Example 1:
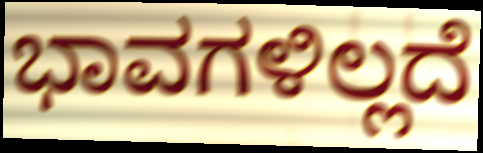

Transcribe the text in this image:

ಭಾವಗಳಿಲ್ಲದೆ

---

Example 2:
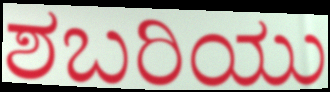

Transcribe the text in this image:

ಶಬರಿಯು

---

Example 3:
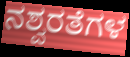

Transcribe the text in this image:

ನಶ್ವರತೆಗಳ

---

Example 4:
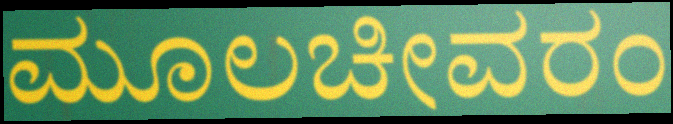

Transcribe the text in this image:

ಮೂಲಚೀವರಂ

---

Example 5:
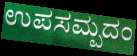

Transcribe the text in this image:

ಉಪಸಮ್ಪದಂ